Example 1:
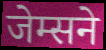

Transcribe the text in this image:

जेम्सने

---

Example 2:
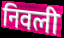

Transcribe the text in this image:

निवली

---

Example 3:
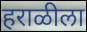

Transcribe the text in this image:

हराळीला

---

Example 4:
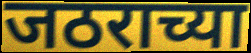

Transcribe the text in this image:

जठराच्या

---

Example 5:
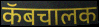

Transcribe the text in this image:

कॅबचालक